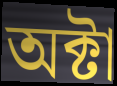
অক্টা